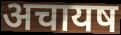
अचायष